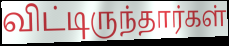
விட்டிருந்தார்கள்